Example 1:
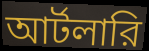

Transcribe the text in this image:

আর্টলারি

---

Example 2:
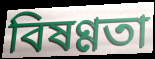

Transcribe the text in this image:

বিষণ্ণতা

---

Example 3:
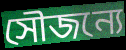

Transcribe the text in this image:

সৌজন্যে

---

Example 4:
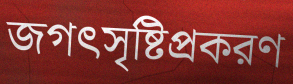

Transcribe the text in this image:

জগৎসৃষ্টিপ্রকরণ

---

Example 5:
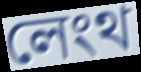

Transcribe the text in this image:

লেংথ